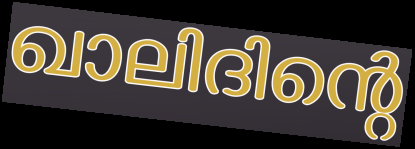
ഖാലിദിന്റെ